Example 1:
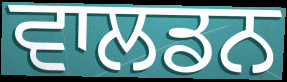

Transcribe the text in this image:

ਵਾਲਡਨ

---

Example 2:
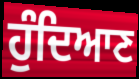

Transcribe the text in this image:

ਹੁੰਦਿਆਣ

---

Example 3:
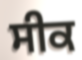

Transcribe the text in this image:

ਸੀਕ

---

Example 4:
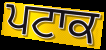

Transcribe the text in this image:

ਪਟਾਕ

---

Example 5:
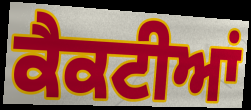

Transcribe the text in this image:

ਕੈਕਟੀਆਂ